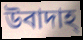
উবাদাহ্